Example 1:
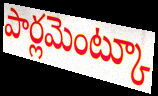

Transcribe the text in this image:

పార్లమెంట్కూ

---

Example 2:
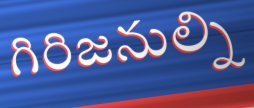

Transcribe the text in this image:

గిరిజనుల్ని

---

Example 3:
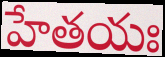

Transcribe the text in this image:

హేతయః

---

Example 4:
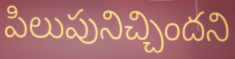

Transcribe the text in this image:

పిలుపునిచ్చిందని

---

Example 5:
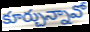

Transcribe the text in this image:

కూర్చున్నావో